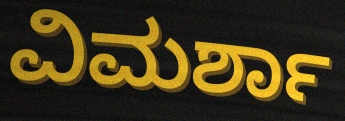
ವಿಮರ್ಶಾ